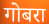
गोबरा